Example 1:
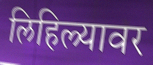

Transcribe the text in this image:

लिहिल्यावर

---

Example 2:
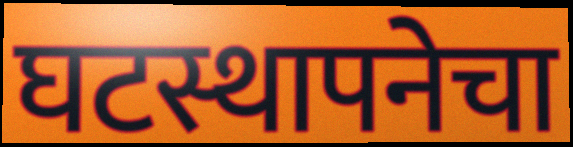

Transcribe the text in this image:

घटस्थापनेचा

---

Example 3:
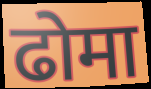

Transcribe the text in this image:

ढोमा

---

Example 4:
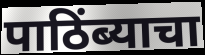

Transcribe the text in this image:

पाठिंब्याचा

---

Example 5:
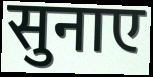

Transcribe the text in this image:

सुनाए